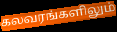
கலவரங்களிலும்